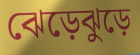
ঝেড়েঝুড়ে